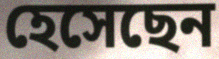
হেসেছেন